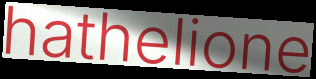
hathelione